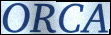
ORCA